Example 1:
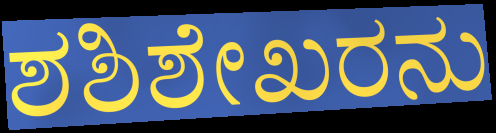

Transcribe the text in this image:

ಶಶಿಶೇಖರನು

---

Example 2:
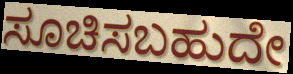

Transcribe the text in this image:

ಸೂಚಿಸಬಹುದೇ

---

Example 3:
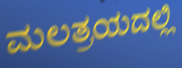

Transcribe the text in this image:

ಮಲತ್ರಯದಲ್ಲಿ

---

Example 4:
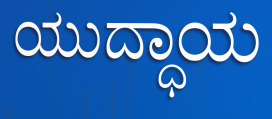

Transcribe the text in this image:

ಯುದ್ಧಾಯ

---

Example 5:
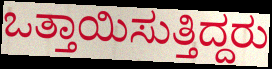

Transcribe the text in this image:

ಒತ್ತಾಯಿಸುತ್ತಿದ್ದರು